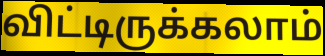
விட்டிருக்கலாம்